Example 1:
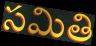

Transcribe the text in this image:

సమితి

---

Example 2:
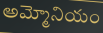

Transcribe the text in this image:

అమ్మోనియం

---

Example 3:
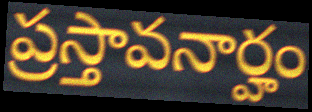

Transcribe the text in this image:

ప్రస్తావనార్హం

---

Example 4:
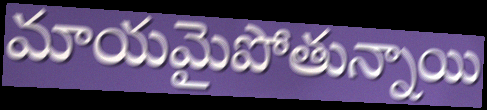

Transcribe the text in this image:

మాయమైపోతున్నాయి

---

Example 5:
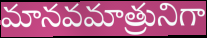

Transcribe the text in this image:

మానవమాత్రునిగా